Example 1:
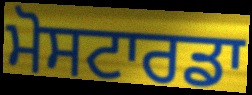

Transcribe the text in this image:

ਮੋਸਟਾਰਡਾ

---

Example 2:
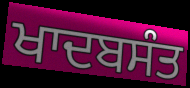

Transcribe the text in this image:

ਖਾਦਬਸੰਤ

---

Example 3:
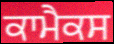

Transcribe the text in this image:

ਕਾਮੈਕਸ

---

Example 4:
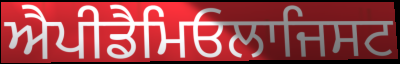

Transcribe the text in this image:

ਐਪੀਡੈਮਿਓਲਾਜਿਸਟ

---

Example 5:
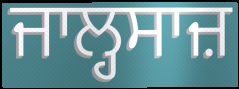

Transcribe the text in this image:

ਜਾਲ੍ਹਸਾਜ਼